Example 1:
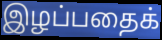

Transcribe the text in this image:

இழப்பதைக்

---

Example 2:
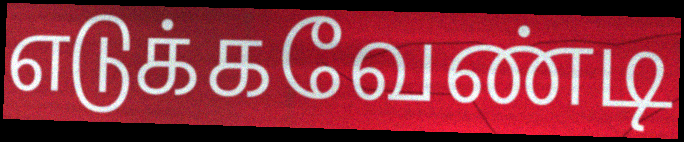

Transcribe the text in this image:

எடுக்கவேண்டி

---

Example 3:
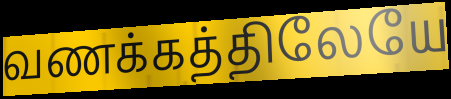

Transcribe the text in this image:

வணக்கத்திலேயே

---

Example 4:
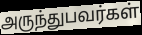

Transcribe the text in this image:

அருந்துபவர்கள்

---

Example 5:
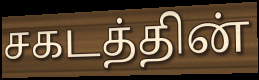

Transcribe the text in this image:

சகடத்தின்